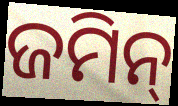
ଜମିନ୍